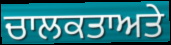
ਚਾਲਕਤਾਅਤੇ